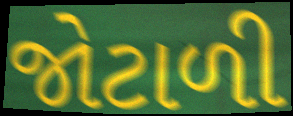
જોટાળી